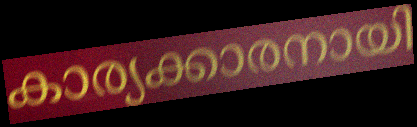
കാര്യക്കാരനായി